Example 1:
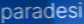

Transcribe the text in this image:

paradesi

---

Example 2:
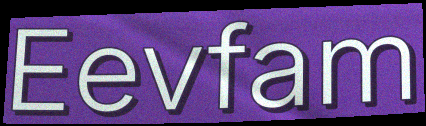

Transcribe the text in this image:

Eevfam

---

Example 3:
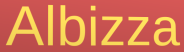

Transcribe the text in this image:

Albizza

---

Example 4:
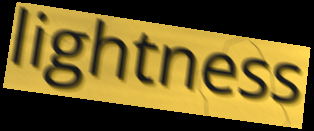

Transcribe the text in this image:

lightness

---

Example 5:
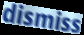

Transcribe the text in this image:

dismiss